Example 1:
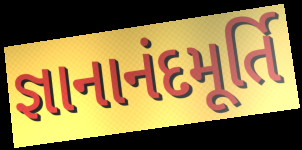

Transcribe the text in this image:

જ્ઞાનાનંદમૂર્તિ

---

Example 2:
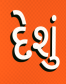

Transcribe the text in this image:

દેશું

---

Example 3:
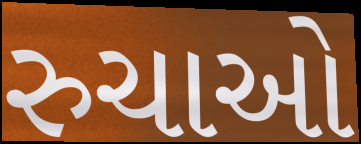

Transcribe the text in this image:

રુચાઓ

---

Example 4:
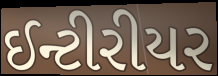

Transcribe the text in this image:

ઈન્ટીરીયર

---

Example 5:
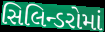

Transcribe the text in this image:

સિલિન્ડરોમાં